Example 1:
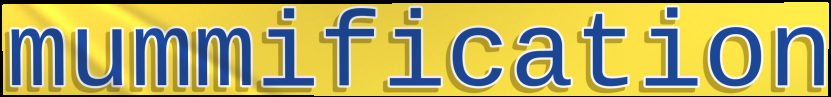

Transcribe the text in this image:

mummification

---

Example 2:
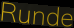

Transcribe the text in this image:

Runde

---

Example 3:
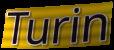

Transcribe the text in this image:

Turin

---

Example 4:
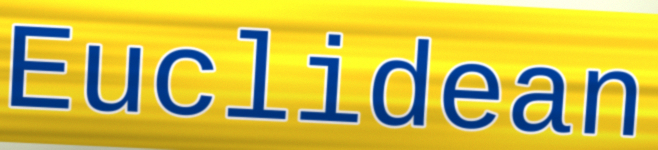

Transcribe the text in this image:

Euclidean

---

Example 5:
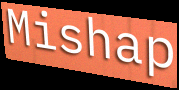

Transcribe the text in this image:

Mishap